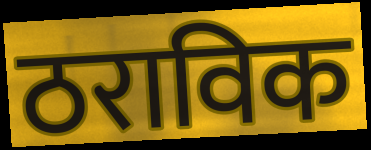
ठराविक